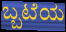
ಬ್ಬಟೆಯ